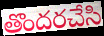
తొందరచేసి